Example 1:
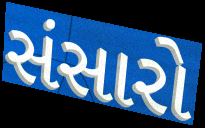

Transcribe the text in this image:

સંસારો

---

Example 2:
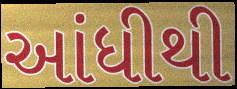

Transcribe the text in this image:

આંધીથી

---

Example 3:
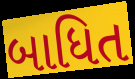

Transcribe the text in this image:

બાધિત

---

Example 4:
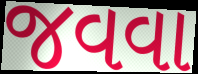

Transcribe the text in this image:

જવવા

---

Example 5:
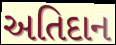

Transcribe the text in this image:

અતિદાન